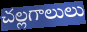
చల్లగాలులు